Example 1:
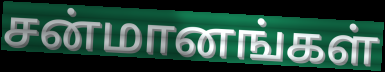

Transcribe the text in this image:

சன்மானங்கள்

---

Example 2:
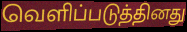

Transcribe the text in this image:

வெளிப்படுத்தினது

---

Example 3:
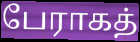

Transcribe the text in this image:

பேராகத்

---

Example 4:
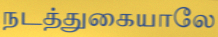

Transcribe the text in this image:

நடத்துகையாலே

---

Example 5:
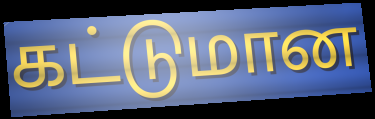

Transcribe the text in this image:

கட்டுமான